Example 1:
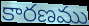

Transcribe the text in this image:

కారణము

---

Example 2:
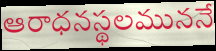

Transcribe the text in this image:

ఆరాధనస్థలముననే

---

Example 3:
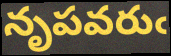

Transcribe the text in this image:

నృపవరుఁ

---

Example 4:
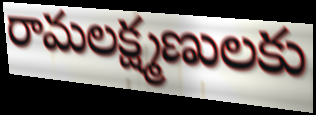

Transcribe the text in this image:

రామలక్ష్మణులకు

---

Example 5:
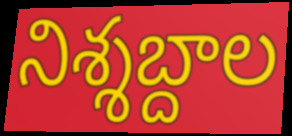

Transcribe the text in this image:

నిశ్శబ్దాల